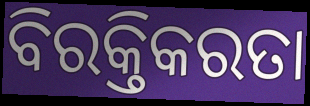
ବିରକ୍ତିକରତା